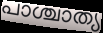
പാശ്ചാത്യ